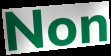
Non